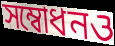
সম্বোধনও